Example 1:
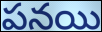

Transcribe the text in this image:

పనయి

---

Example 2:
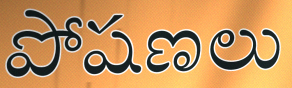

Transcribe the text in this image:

పోషణలు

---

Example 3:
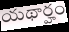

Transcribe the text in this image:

యథార్హం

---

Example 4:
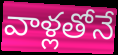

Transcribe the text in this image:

వాళ్లతోనే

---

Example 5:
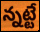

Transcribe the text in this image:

న్నట్టే